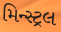
મિન્સ્ટ્રલ